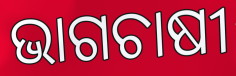
ଭାଗଚାଷୀ